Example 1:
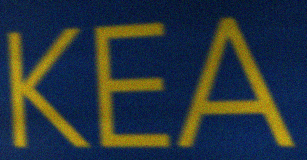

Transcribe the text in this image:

KEA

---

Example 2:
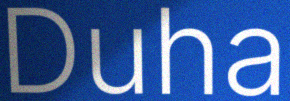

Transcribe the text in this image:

Duha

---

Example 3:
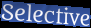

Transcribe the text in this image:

Selective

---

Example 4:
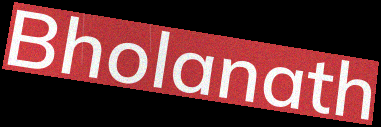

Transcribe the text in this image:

Bholanath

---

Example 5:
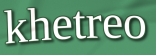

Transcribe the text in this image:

khetreo